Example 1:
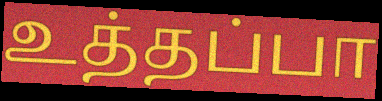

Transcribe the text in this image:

உத்தப்பா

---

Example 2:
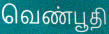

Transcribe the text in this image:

வெண்பூதி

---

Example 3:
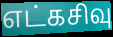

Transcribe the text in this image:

எட்கசிவு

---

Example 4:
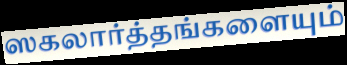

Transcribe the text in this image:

ஸகலார்த்தங்களையும்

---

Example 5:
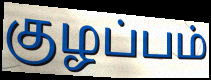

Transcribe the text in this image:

குழப்பம்